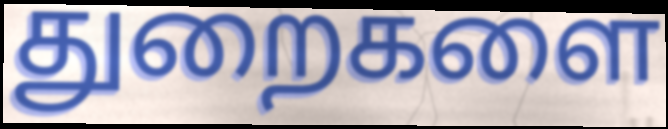
துறைகளை